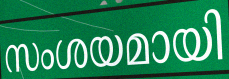
സംശയമായി